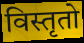
विस्तृतो